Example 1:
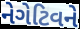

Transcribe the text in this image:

નેગેટિવને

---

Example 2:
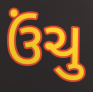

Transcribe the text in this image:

ઉંચુ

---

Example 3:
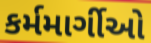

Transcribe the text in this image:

કર્મમાર્ગીઓ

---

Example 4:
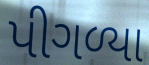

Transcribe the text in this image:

પીગળ્યા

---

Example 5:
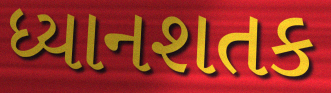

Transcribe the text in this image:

ધ્યાનશતક